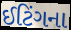
ઈટિંગના